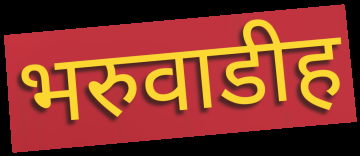
भरुवाडीह